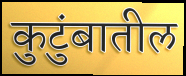
कुटुंबातील